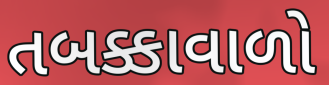
તબક્કાવાળો